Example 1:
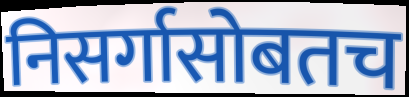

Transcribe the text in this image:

निसर्गासोबतच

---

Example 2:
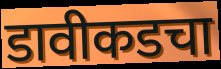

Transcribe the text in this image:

डावीकडचा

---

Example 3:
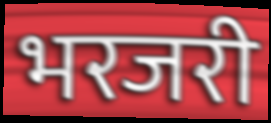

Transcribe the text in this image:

भरजरी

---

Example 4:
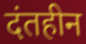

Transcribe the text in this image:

दंतहीन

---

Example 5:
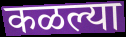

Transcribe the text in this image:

कळल्या